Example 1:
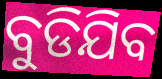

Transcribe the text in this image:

ବୁଡିଯିବ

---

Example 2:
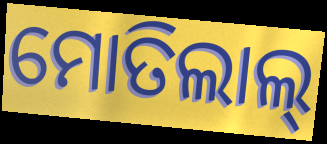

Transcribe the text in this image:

ମୋତିଲାଲ୍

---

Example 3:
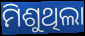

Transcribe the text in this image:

ମିଶୁଥିଲା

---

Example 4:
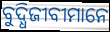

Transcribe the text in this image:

ବୁଦ୍ଧିଜୀବୀମାନେ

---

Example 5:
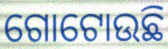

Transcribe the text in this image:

ଗୋଟୋଉଛି